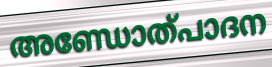
അണ്ഡോത്പാദന